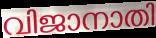
വിജാനാതി